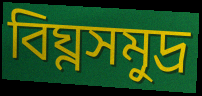
বিঘ্নসমুদ্র